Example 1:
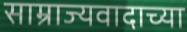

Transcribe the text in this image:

साम्राज्यवादाच्या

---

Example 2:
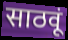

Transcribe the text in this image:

साठवूं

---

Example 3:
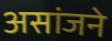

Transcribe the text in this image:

असांजने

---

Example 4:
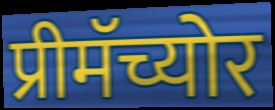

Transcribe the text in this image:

प्रीमॅच्योर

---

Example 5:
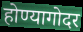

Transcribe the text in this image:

होण्यागोदर